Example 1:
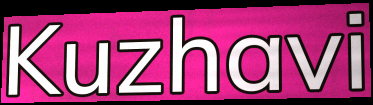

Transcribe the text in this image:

Kuzhavi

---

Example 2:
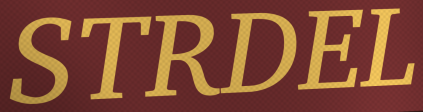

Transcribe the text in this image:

STRDEL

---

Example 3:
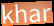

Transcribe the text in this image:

khar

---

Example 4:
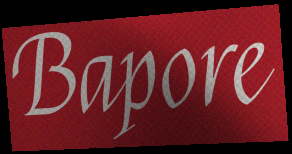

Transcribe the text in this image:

Bapore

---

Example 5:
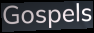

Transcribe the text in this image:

Gospels